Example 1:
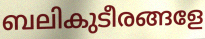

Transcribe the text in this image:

ബലികുടീരങ്ങളേ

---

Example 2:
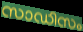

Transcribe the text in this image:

സാഡിസം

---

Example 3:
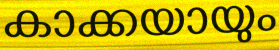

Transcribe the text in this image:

കാക്കയായും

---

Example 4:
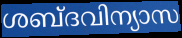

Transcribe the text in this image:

ശബ്ദവിന്യാസ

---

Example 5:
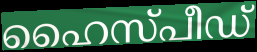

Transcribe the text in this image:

ഹൈസ്പീഡ്